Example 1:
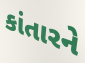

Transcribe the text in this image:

કાંતારને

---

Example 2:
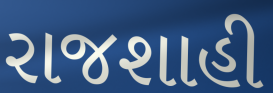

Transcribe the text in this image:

રાજશાહી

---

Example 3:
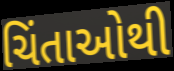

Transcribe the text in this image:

ચિંતાઓથી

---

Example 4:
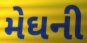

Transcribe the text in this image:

મેઘની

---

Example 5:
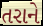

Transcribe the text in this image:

તરાને